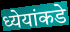
ध्येयांकडे